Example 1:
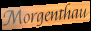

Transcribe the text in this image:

Morgenthau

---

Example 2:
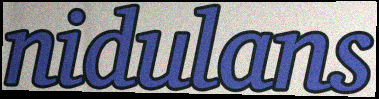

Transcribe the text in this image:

nidulans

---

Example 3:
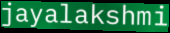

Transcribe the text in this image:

jayalakshmi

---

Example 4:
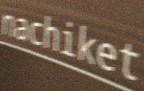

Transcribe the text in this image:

nachiket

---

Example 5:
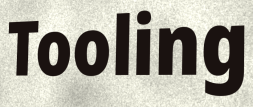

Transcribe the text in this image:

Tooling